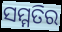
ସମ୍ମତିର